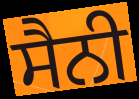
ਸੈਨੀ